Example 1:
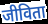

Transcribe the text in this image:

जीविता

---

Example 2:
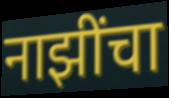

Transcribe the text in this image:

नाझींचा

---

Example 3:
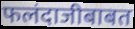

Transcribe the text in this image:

फलंदाजीबाबत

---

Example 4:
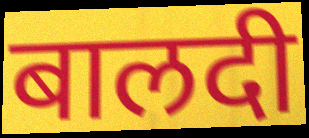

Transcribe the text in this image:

बालदी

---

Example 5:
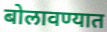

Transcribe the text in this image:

बोलावण्यात